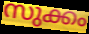
സുക്കം